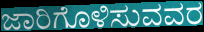
ಜಾರಿಗೊಳಿಸುವವರ